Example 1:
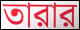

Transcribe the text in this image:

তারার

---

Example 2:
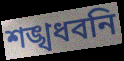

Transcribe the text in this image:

শঙ্খধবনি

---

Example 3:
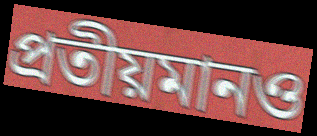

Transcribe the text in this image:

প্রতীয়মানও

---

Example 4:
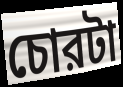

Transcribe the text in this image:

চোরটা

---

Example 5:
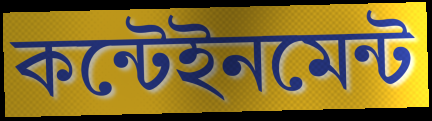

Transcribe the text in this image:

কন্টেইনমেন্ট